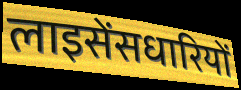
लाइसेंसधारियों